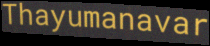
Thayumanavar